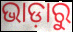
ଭାଡ଼ାରୁ